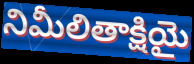
నిమీలితాక్షియై